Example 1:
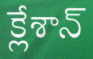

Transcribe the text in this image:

క్లేశాన్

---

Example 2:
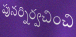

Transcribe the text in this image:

పునర్నిర్వచించి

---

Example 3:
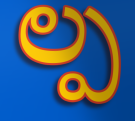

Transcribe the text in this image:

ల్ప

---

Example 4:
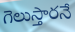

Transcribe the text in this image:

గెలుస్తారనే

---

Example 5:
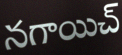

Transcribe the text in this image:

నగాయిచ్